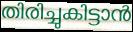
തിരിച്ചുകിട്ടാൻ